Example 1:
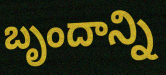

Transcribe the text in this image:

బృందాన్ని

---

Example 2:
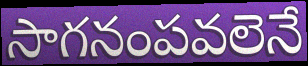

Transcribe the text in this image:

సాగనంపవలెనే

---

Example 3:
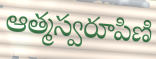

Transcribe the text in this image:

ఆత్మస్వరూపిణి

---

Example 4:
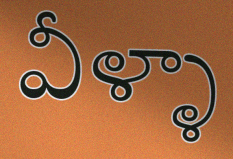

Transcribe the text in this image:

వీళ్ళా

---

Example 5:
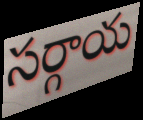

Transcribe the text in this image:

సర్గాయ